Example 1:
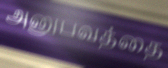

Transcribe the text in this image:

அனுபவத்தை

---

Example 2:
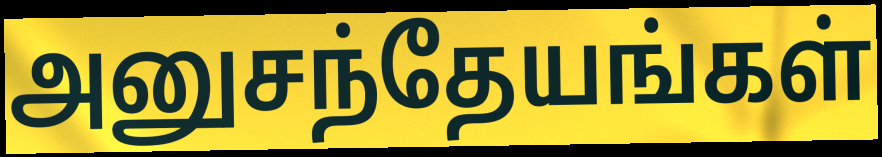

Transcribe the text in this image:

அனுசந்தேயங்கள்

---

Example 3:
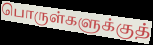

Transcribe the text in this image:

பொருள்களுக்குத்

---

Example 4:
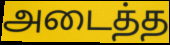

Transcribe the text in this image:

அடைத்த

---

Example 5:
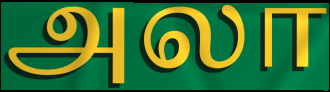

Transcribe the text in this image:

அலா